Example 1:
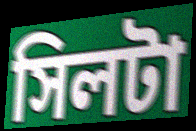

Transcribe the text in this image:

সিলটা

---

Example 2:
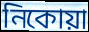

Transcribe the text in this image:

নিকোয়া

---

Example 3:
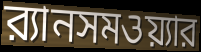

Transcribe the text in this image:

র‍্যানসমওয়্যার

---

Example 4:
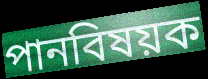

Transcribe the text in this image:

পানবিষয়ক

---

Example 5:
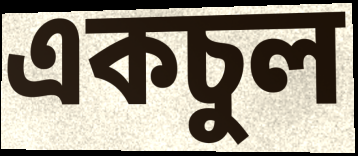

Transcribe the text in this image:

একচুল